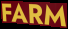
FARM